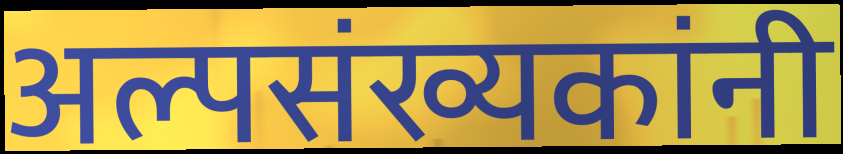
अल्पसंख्यकांनी